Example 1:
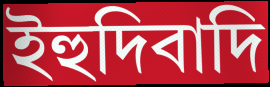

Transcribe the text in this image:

ইহুদিবাদি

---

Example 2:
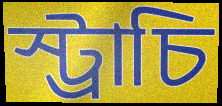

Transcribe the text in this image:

স্ট্রাচি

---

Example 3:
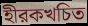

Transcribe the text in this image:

হীরকখচিত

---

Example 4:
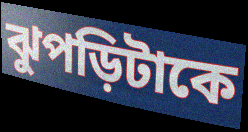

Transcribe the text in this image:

ঝুপড়িটাকে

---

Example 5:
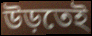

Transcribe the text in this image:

উড়তেই